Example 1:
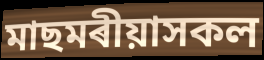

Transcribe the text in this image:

মাছমৰীয়াসকল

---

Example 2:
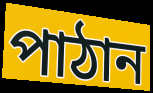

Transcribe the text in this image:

পাঠান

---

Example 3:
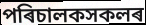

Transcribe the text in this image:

পৰিচালকসকলৰ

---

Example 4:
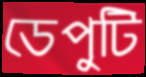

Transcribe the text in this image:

ডেপুটি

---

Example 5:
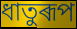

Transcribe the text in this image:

ধাতুৰূপ